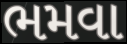
ભમવા